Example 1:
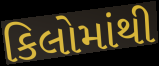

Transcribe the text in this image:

કિલોમાંથી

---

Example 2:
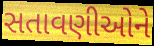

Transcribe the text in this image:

સતાવણીઓને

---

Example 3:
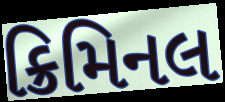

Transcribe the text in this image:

ક્રિમિનલ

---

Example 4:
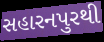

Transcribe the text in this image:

સહારનપુરથી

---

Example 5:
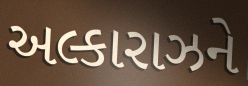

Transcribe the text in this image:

અલ્કારાઝને